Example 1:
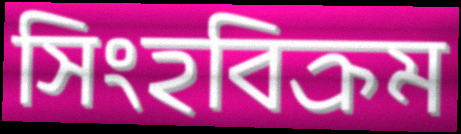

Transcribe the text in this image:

সিংহবিক্রম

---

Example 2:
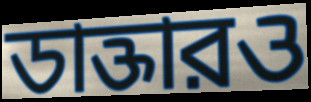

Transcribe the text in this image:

ডাক্তারও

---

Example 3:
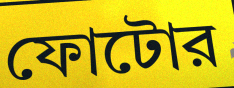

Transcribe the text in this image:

ফোটোর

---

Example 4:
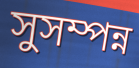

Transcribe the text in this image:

সুসম্পন্ন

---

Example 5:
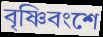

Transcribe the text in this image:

বৃষ্ণিবংশে